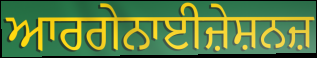
ਆਰਗੇਨਾਈਜ਼ੇਸ਼ਨਜ਼